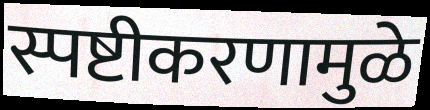
स्पष्टीकरणामुळे